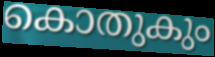
കൊതുകും